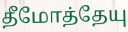
தீமோத்தேயு